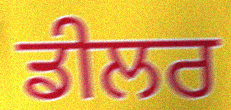
ਡੀਲਰ